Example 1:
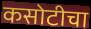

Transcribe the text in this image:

कसोटीचा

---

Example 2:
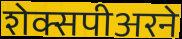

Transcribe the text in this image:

शेक्सपीअरने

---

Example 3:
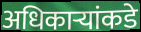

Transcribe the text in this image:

अधिकार्‍यांकडे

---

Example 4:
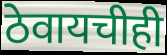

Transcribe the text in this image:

ठेवायचीही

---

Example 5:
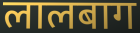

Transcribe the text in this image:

लालबाग